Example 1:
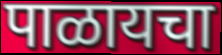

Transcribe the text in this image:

पाळायचा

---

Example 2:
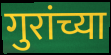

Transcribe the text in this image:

गुरांच्या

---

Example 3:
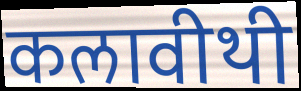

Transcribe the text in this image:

कलावीथी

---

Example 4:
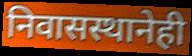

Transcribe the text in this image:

निवासस्थानेही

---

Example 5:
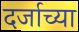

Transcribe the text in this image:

दर्जाच्या